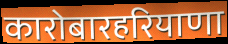
कारोबारहरियाणा